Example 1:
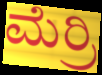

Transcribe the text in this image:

ಮೆರ್ರಿ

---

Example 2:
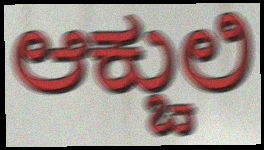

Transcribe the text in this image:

ಆಕ್ಚುಲಿ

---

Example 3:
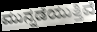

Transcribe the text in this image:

ಮುನ್ನಡೆಯುತ್ತಿವೆ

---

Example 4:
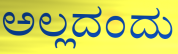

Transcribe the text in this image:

ಅಲ್ಲದಂದು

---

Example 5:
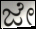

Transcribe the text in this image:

ಜೇ